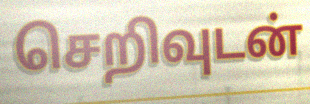
செறிவுடன்